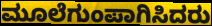
ಮೂಲೆಗುಂಪಾಗಿಸಿದರು